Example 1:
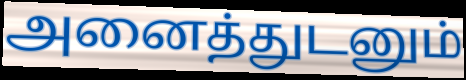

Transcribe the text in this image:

அனைத்துடனும்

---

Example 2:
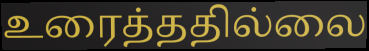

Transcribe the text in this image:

உரைத்ததில்லை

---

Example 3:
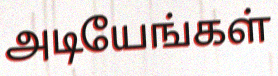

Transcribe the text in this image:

அடியேங்கள்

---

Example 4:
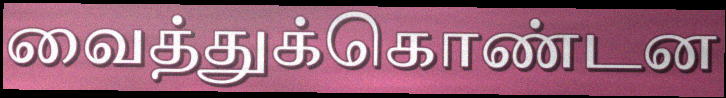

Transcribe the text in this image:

வைத்துக்கொண்டன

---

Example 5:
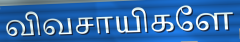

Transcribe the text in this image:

விவசாயிகளே